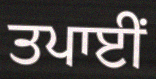
ਤਪਾਈਂ